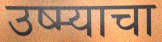
उष्म्याचा